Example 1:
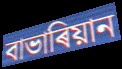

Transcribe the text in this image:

বাভাৰিয়ান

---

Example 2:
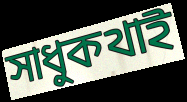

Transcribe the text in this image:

সাধুকথাই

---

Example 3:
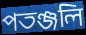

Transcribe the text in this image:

পতঞ্জলি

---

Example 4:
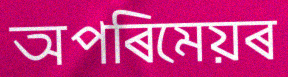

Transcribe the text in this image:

অপৰিমেয়ৰ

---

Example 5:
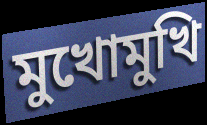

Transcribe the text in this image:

মুখোমুখি